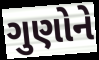
ગુણોને